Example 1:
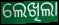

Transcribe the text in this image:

ଲେଖିଲା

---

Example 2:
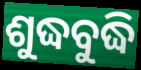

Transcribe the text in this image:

ଶୁଦ୍ଧବୁଦ୍ଧି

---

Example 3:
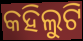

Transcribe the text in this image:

କହିଲୁଟି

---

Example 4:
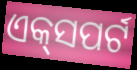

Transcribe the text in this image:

ଏକ୍‌ସପର୍ଟ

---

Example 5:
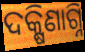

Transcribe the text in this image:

ଦକ୍ଷିଣାଗ୍ନି